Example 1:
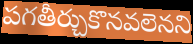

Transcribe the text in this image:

పగతీర్చుకొనవలెనని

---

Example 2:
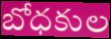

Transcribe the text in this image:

బోధకుల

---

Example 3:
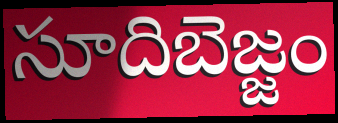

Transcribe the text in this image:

సూదిబెజ్జం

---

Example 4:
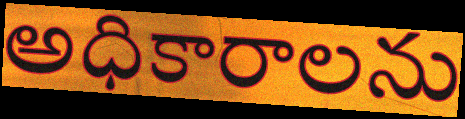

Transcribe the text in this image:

అధికారాలను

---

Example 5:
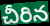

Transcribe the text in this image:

చీరిన